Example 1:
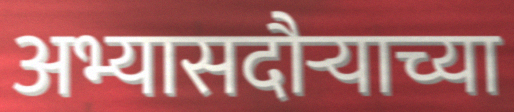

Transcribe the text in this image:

अभ्यासदौऱ्याच्या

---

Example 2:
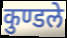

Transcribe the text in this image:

कुण्डले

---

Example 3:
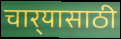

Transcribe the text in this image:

चार्‍यासाठी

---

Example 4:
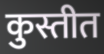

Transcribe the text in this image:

कुस्तीत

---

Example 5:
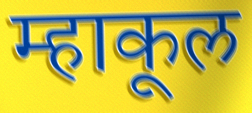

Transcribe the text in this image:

म्हाकूल